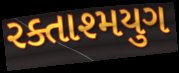
રક્તાશ્મયુગ